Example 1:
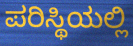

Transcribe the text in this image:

ಪರಿಸ್ಥಿಯಲ್ಲಿ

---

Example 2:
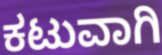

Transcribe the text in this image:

ಕಟುವಾಗಿ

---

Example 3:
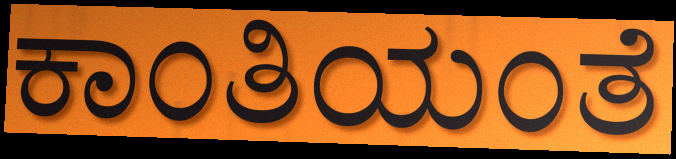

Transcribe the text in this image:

ಕಾಂತಿಯಂತೆ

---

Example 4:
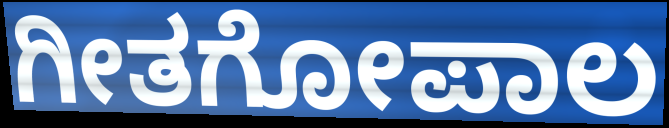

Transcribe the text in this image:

ಗೀತಗೋಪಾಲ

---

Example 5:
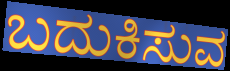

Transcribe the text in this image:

ಬದುಕಿಸುವ